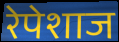
रेपेशाज